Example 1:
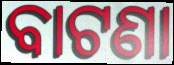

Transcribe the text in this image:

ବାଟଣା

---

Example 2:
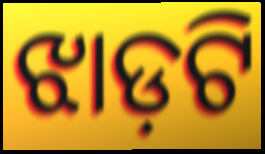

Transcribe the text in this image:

ଝାଡ଼ଟି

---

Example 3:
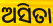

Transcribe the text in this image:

ଅସିତା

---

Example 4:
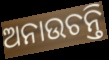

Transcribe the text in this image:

ଅନାଉଚନ୍ତି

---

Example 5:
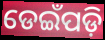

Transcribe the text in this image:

ଡେଇଁପଡ଼ି